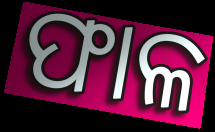
ଫାଳ